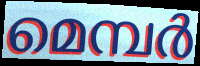
മെമ്പർ